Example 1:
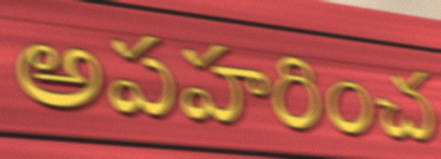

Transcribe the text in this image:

అపహరించ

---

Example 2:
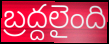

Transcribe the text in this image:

బ్రద్దలైంది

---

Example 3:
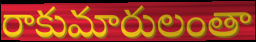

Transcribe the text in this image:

రాకుమారులంతా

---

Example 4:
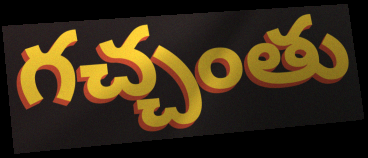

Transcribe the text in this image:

గచ్చంతు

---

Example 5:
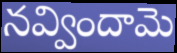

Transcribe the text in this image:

నవ్విందామె